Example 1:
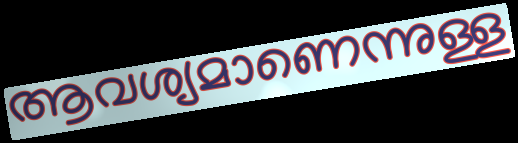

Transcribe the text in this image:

ആവശ്യമാണെന്നുള്ള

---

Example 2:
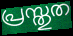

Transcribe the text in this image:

പ്രസ്തുത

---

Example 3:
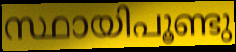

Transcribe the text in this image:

സ്ഥായിപൂണ്ടു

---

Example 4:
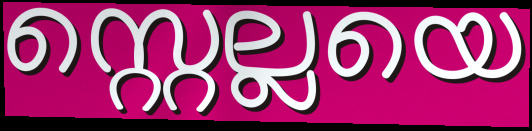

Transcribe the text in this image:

സ്റ്റെല്ലയെ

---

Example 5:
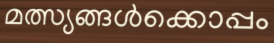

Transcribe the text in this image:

മത്സ്യങ്ങൾക്കൊപ്പം